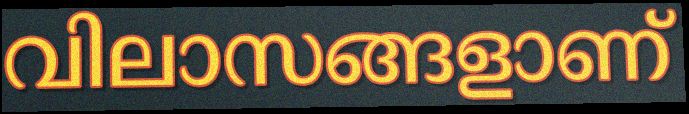
വിലാസങ്ങളാണ്